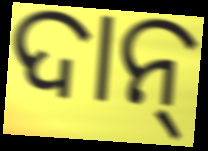
ଦାନ୍